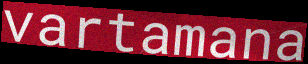
vartamana